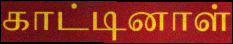
காட்டினாள்